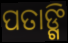
ପତାଙ୍ଗି